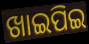
ଖାଇପିଇ